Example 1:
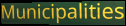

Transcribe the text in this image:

Municipalities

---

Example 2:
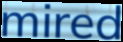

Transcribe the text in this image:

mired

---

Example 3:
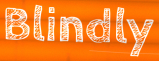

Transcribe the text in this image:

Blindly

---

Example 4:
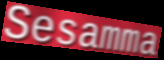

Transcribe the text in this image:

Sesamma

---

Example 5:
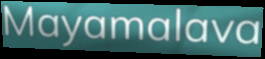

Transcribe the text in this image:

Mayamalava